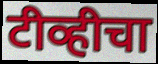
टीव्हीचा